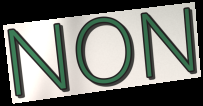
NON